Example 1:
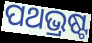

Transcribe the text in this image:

ପଥଭ୍ରଷ୍ଟ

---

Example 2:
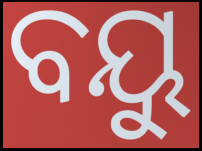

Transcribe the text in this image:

ବୟୁ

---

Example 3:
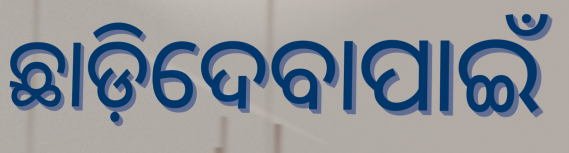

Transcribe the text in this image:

ଛାଡ଼ିଦେବାପାଇଁ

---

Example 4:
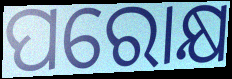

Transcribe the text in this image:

ପରୋକ୍ଷ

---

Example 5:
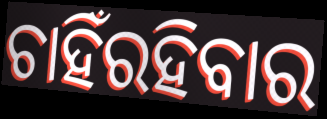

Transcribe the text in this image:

ଚାହିଁରହିବାର